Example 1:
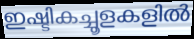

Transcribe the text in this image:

ഇഷ്ടികച്ചൂളകളിൽ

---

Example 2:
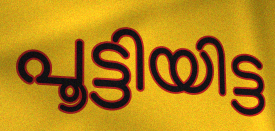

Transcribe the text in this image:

പൂട്ടിയിട്ട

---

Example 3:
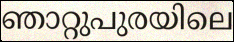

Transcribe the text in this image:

ഞാറ്റുപുരയിലെ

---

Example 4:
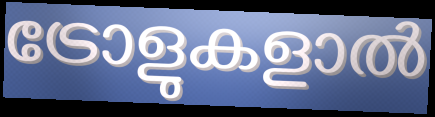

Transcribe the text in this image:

ട്രോളുകളാൽ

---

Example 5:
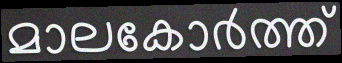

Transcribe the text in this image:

മാലകോർത്ത്